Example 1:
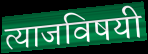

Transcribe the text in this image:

त्याजविषयी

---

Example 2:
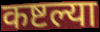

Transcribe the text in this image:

कष्टल्या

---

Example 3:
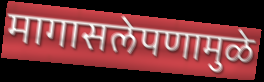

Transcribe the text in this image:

मागासलेपणामुळे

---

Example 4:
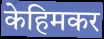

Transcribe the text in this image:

केहिमकर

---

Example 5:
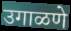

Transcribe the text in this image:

उगाळणे